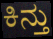
ಕಿನ್ತು